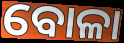
ବୋଳା